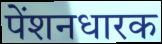
पेंशनधारक